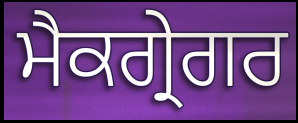
ਮੈਕਗ੍ਰੇਗਰ